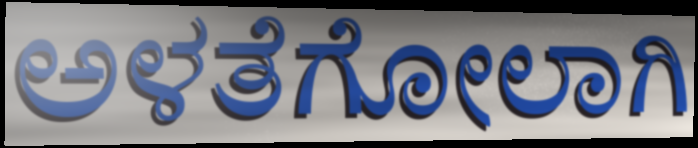
ಅಳತೆಗೋಲಾಗಿ